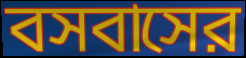
বসবাসের